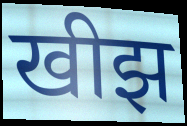
खीझ